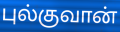
புல்குவான்